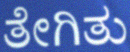
ತೇಗಿತು